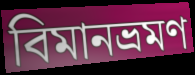
বিমানভ্রমণ